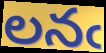
లనఁ